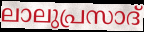
ലാലുപ്രസാദ്